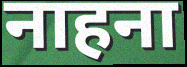
नाहना